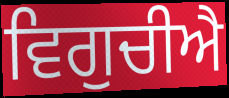
ਵਿਗੁਚੀਐ